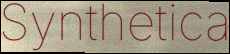
Synthetica